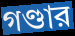
গণ্ডার